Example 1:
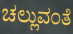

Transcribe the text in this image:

ಚಲ್ಲುವಂತೆ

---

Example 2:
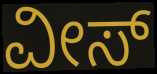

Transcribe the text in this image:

ವೀಸ್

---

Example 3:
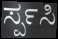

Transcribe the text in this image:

ರ್ಸ್ಪಸಿ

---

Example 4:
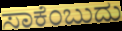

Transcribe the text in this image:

ಸಾಕೆಂಬುದು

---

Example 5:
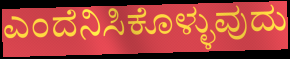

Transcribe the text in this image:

ಎಂದೆನಿಸಿಕೊಳ್ಳುವುದು